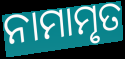
ନାମାମୃତ